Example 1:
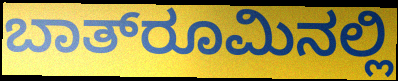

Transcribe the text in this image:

ಬಾತ್‌ರೂಮಿನಲ್ಲಿ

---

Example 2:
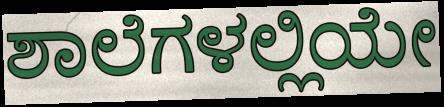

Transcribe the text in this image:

ಶಾಲೆಗಳಲ್ಲಿಯೇ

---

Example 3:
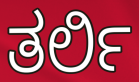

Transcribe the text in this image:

ತರ್ಲಿ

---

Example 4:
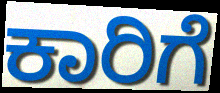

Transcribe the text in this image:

ಕಾರಿಗೆ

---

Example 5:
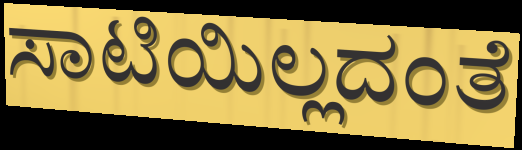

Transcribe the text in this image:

ಸಾಟಿಯಿಲ್ಲದಂತೆ